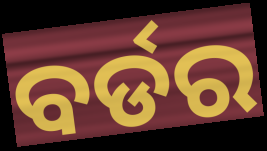
ବର୍ଡର